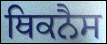
ਥਿਕਨੈਸ